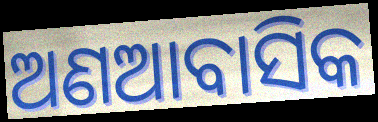
ଅଣଆବାସିକ